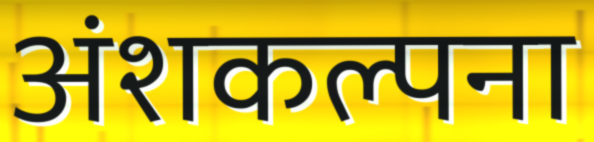
अंशकल्पना